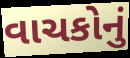
વાચકોનું